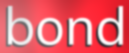
bond